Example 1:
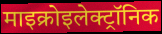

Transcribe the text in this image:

माइक्रोइलेक्ट्रॉनिक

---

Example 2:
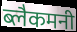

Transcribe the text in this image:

ब्लैकमनी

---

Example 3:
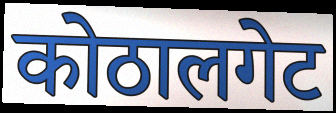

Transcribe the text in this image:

कोठालगेट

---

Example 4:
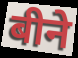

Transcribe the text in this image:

बीने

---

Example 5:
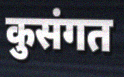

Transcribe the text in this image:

कुसंगत